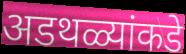
अडथळ्यांकडे